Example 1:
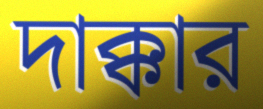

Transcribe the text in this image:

দাক্কার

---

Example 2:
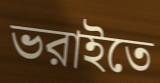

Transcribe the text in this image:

ভরাইতে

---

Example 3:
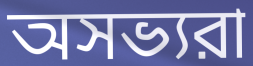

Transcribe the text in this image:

অসভ্যরা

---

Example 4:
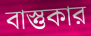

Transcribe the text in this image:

বাস্তুকার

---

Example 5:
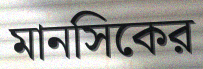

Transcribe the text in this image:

মানসিকের